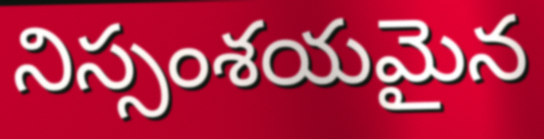
నిస్సంశయమైన